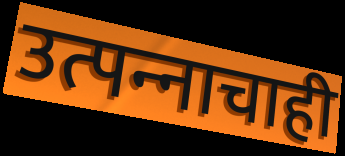
उत्पन्नाचाही